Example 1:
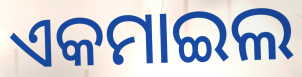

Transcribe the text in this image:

ଏକମାଇଲ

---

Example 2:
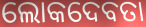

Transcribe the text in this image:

ଲୋକଦେବତା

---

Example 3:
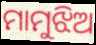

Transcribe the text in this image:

ମାମୁଝିଅ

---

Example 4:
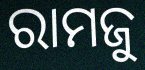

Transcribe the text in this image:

ରାମଜୁ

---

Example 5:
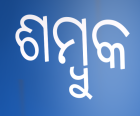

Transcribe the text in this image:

ଶମ୍ବୁକ